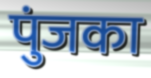
पुंजका